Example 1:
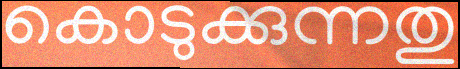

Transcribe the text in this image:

കൊടുക്കുന്നതു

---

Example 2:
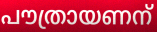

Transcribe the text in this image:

പൗത്രായണന്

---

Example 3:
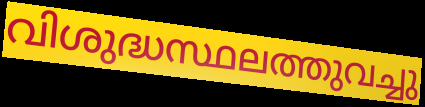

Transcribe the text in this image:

വിശുദ്ധസ്ഥലത്തുവച്ചു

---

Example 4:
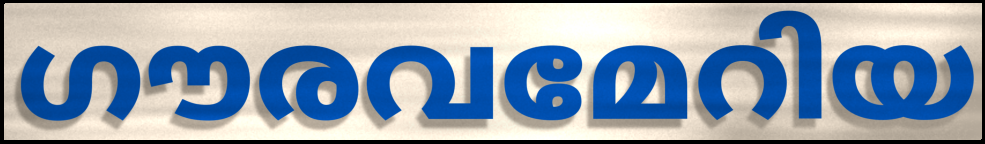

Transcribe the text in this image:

ഗൗരവമേറിയ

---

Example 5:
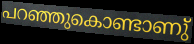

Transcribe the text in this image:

പറഞ്ഞുകൊണ്ടാണു്